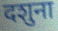
दशुना